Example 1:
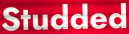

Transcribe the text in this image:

Studded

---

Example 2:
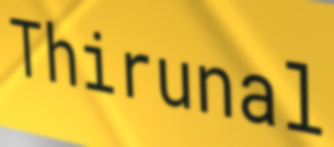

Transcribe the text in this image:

Thirunal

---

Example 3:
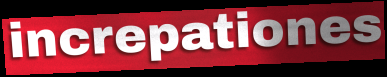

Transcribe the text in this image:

increpationes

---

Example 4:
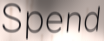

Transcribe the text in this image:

Spend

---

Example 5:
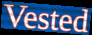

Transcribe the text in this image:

Vested